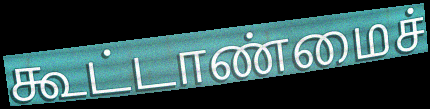
கூட்டாண்மைச்